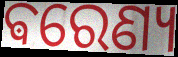
ଵରେଣ୍ୟ